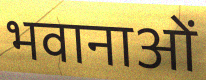
भवानाओं